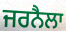
ਜਰਨੈਲਾ